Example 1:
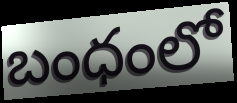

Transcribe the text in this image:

బంధంలో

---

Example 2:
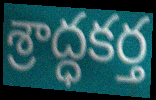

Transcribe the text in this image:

శ్రాద్ధకర్త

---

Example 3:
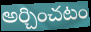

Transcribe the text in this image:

అర్చించటం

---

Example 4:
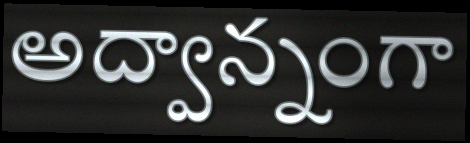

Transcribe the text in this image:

అద్వాన్నంగా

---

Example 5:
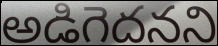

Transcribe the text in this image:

అడిగెదనని